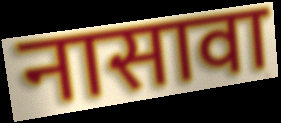
नासावा